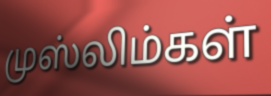
முஸ்லிம்கள்